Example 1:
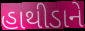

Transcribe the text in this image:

હાથીડાને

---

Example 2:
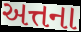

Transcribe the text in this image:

અત્તના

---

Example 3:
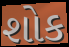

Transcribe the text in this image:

શોક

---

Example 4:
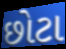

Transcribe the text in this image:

છોટા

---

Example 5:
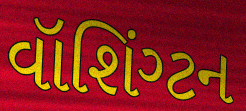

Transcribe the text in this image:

વૉશિંગ્ટન